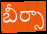
బీర్సా